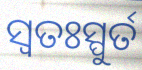
ସ୍ୱତଃସ୍ପୁର୍ତ